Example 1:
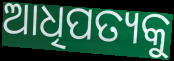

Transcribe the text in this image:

ଆଧିପତ୍ୟକୁ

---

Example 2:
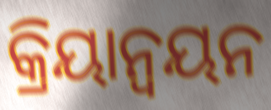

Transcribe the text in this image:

କ୍ରିୟାନ୍ଵୟନ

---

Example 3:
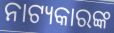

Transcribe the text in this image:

ନାଟ୍ୟକାରଙ୍କ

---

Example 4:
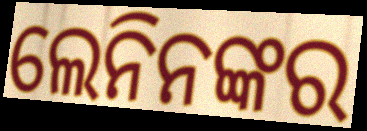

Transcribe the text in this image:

ଲେନିନଙ୍କର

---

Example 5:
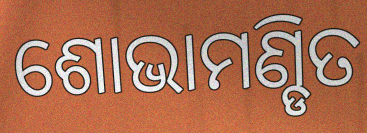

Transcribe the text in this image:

ଶୋଭାମଣ୍ଡିତ